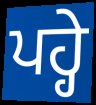
ਪਹ੍ਹੇ